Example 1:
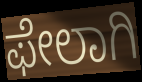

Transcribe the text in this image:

ಫೇಲಾಗಿ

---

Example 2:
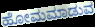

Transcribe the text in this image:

ಹೋಮಮಾಡುವ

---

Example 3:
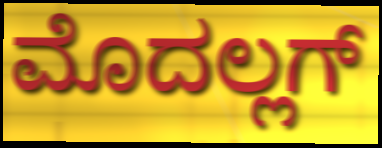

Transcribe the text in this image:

ಮೊದಲ್ಲಗ್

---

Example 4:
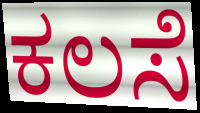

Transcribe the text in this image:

ಕಲಸೆ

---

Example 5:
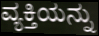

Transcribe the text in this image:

ವ್ಯಕ್ತಿಯನ್ನು